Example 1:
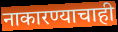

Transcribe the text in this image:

नाकारण्याचाही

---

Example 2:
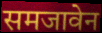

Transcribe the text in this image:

समजावेन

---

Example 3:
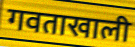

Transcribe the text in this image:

गवताखाली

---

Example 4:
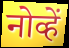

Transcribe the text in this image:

नोव्हें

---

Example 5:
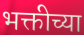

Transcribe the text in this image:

भक्तीच्या